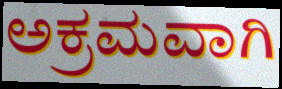
ಅಕ್ರಮವಾಗಿ